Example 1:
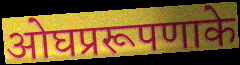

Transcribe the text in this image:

ओघप्ररूपणाके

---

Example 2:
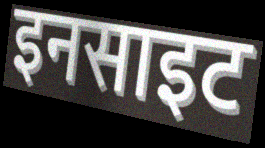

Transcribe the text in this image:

इनसाइट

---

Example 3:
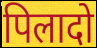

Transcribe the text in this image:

पिलादो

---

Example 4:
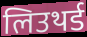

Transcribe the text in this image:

लिउथर्ड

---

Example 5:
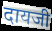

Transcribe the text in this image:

दायजी